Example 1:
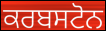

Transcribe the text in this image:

ਕਰਬਸਟੋਨ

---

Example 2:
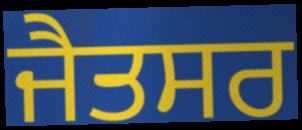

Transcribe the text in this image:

ਜੈਤਸਰ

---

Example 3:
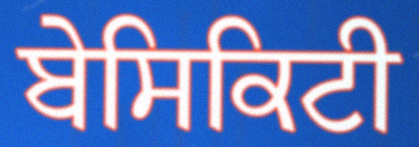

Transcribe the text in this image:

ਬੇਸਿਕਿਟੀ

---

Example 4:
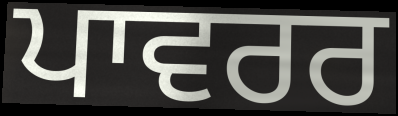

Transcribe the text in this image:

ਪਾਵਰਰ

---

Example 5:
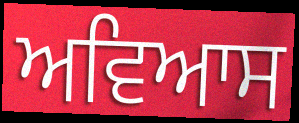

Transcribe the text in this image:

ਅਵਿਆਸ